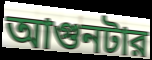
আগুনটার